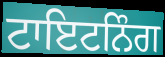
ਟਾਇਟਨਿੰਗ